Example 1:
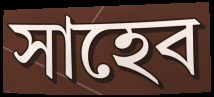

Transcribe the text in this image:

সাহেব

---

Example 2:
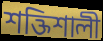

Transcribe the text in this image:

শক্তিশালী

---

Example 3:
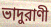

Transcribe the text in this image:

ভাদুরাণী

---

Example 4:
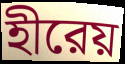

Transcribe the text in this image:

হীরেয়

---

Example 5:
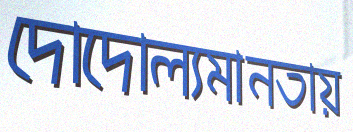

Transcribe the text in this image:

দোদোল্যমানতায়